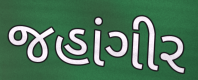
જહાંગીર